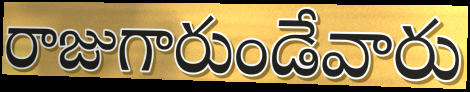
రాజుగారుండేవారు